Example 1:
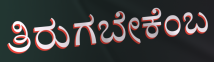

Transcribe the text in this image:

ತಿರುಗಬೇಕೆಂಬ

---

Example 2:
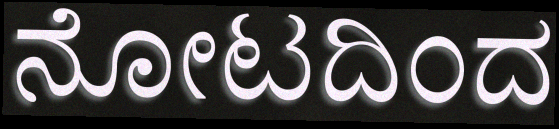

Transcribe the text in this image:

ನೋಟದಿಂದ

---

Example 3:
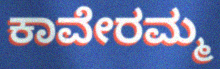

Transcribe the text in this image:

ಕಾವೇರಮ್ಮ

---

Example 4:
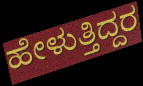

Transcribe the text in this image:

ಹೇಳುತ್ತಿದ್ದರ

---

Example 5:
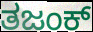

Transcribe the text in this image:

ತಜಂಕ್